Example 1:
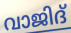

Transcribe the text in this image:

വാജിദ്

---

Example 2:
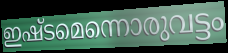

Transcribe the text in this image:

ഇഷ്ടമെന്നൊരുവട്ടം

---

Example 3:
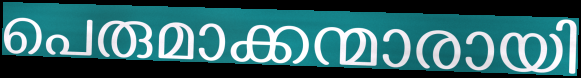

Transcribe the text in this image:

പെരുമാക്കന്മാരായി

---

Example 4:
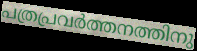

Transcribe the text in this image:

പത്രപ്രവർത്തനത്തിനു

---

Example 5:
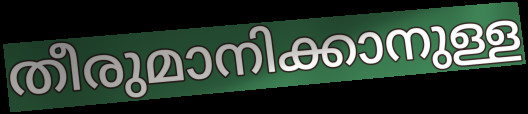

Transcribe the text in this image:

തീരുമാനിക്കാനുള്ള